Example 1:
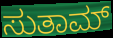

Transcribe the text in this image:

ಸುತಾಮ್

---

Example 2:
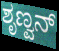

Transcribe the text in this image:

ಶೃಣ್ವನ್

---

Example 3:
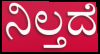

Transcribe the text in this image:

ನಿಲ್ತದೆ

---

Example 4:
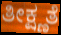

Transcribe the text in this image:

ತೀಕ್ಷ್ಣತೆ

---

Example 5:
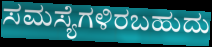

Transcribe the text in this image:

ಸಮಸ್ಯೆಗಳಿರಬಹುದು